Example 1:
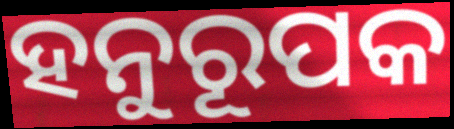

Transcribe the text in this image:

ହନୁରୂପକ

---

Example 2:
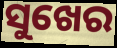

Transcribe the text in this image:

ସୁଖେର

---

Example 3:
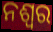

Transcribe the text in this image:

ନଶ୍ଵର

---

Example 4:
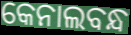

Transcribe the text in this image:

କେନାଲବନ୍ଧ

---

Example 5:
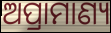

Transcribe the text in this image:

ଅପ୍ରାମାଣ୍ୟ